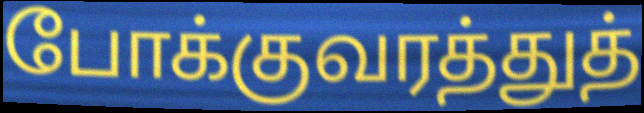
போக்குவரத்துத்